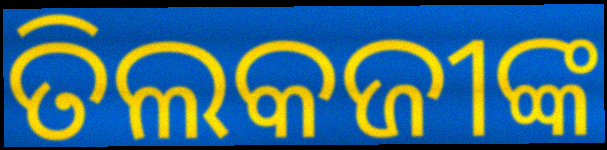
ତିଲକଜୀଙ୍କ